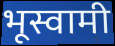
भूस्‍वामी